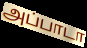
அப்பாடா